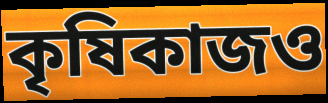
কৃষিকাজও